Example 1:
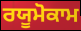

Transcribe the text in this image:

ਰਯੂਮੋਕਾਮ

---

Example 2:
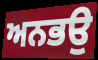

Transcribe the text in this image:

ਅਨਭਉ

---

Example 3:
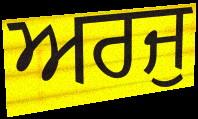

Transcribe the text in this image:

ਅਰਜੁ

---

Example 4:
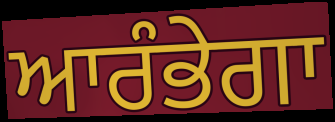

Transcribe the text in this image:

ਆਰੰਭੇਗਾ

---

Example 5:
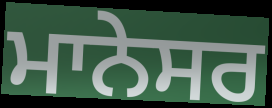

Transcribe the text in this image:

ਮਾਨੇਸਰ